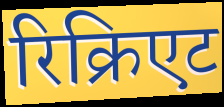
रिक्रिएट